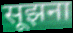
सूझना